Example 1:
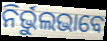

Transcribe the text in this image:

ନିର୍ଭୁଲଭାବେ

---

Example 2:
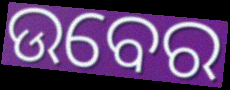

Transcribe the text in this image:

ଉବେର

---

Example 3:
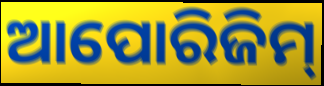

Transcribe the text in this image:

ଆପୋରିଜିମ୍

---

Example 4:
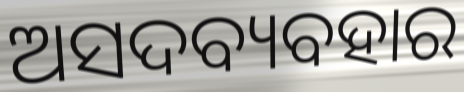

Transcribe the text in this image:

ଅସଦବ୍ୟବହାର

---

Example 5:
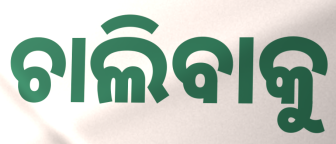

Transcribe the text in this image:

ଚାଲିବାକୁ